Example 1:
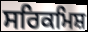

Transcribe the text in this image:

ਸਰਿਕਮਿਸ਼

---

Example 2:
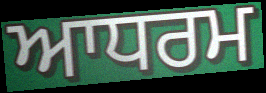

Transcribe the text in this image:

ਆਧਰਮ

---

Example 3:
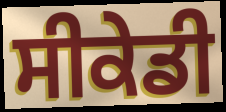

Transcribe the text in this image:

ਸੀਕੇਡੀ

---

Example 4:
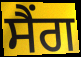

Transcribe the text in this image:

ਸੈਂਗ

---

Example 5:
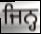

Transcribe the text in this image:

ਜਿਨ੍ਹ